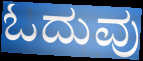
ಓದುವು